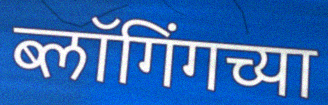
ब्लॉगिंगच्या